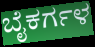
ಬೈಕರ್ಗಳ